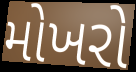
મોખરો